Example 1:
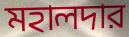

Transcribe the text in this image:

মহালদার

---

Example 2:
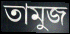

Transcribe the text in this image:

তামুজ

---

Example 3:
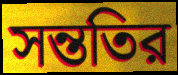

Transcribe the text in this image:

সন্ততির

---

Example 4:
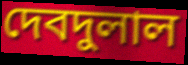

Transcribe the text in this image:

দেবদুলাল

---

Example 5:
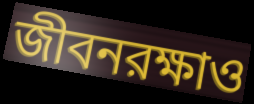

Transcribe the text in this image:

জীবনরক্ষাও